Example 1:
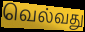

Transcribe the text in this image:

வெல்வது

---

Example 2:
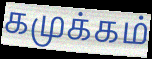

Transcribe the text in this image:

கமுக்கம்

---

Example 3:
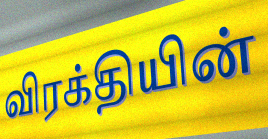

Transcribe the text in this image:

விரக்தியின்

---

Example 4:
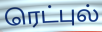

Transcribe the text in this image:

ரெட்புல்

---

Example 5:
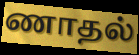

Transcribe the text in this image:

ணாதல்